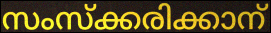
സംസ്ക്കരിക്കാന്